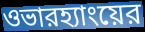
ওভারহ্যাংয়ের